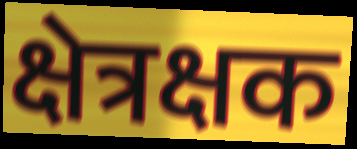
क्षेत्रक्षक